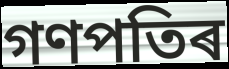
গণপতিৰ